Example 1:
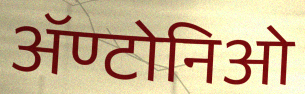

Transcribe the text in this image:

ॲण्टोनिओ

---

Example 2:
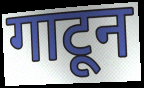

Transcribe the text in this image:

गाटून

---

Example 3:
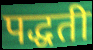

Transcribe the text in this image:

पद्धती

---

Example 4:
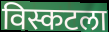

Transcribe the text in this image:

विस्कटला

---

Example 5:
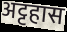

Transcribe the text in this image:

अट्टहास